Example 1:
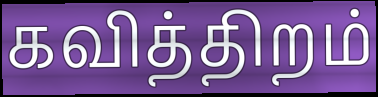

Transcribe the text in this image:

கவித்திறம்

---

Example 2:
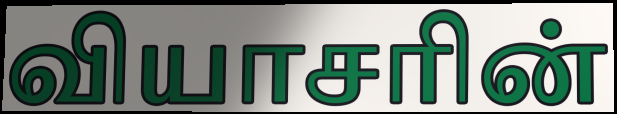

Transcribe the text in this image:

வியாசரின்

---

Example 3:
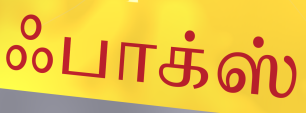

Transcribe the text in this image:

ஃபாக்ஸ்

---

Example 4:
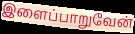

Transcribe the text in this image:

இளைப்பாறுவேன்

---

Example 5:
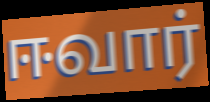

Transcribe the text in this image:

ஈவார்